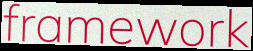
framework